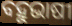
ବହୁଭାଷୀ